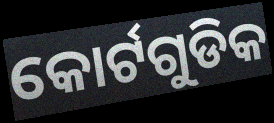
କୋର୍ଟଗୁଡିକ